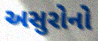
અસુરોનો